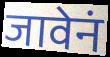
जावेनं